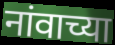
नांवाच्या